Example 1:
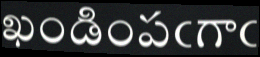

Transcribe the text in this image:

ఖండింపఁగాఁ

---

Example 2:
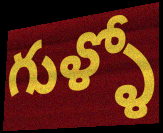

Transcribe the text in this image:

గుళ్ళో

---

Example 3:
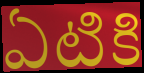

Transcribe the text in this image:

ఏటికి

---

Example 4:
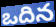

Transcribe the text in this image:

ఒదిన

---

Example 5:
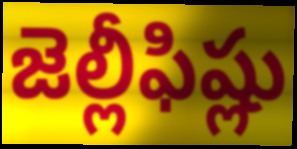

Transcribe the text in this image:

జెల్లీఫిష్లు